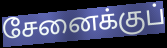
சேனைக்குப்